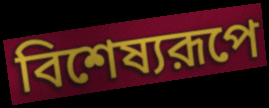
বিশেষ্যরূপে